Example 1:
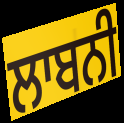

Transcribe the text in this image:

ਲਾਬਨੀ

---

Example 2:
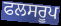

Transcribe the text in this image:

ਫਲਸਰੂਪ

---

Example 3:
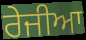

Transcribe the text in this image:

ਰੇਜੀਆ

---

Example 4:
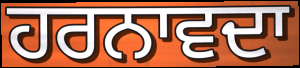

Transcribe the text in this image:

ਹਰਨਾਵਦਾ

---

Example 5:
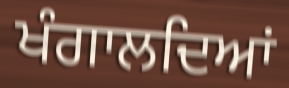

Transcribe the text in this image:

ਖੰਗਾਲਦਿਆਂ